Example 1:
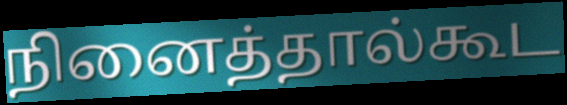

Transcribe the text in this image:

நினைத்தால்கூட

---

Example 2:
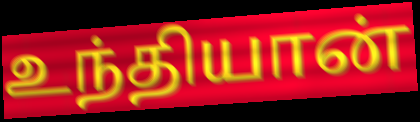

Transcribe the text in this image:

உந்தியான்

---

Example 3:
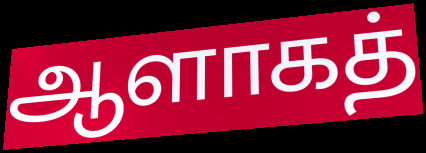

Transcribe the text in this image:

ஆளாகத்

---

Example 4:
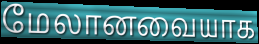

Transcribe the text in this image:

மேலானவையாக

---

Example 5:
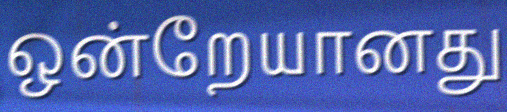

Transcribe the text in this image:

ஒன்றேயானது